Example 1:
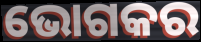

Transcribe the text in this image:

ଭୋଗକର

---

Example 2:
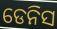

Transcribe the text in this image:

ଡେନିସ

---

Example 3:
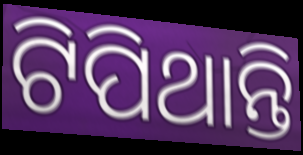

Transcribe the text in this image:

ଟିପିଥାନ୍ତି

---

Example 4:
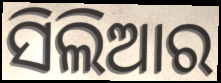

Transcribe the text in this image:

ସିଲିଆର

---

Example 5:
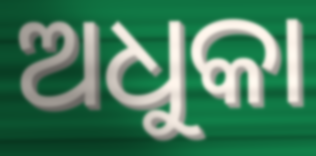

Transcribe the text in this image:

ଅଧୁକା